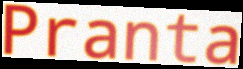
Pranta